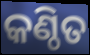
କଣ୍ଠିତ